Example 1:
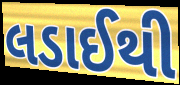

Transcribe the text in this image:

લડાઈથી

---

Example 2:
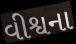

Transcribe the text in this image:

વીશ્વના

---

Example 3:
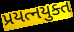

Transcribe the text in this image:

પ્રયત્નયુક્ત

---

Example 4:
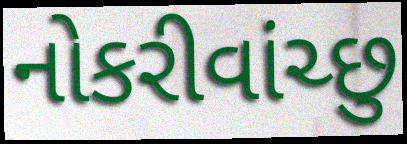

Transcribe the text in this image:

નોકરીવાંચ્છુ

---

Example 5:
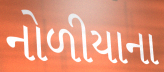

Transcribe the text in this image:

નોળીયાના